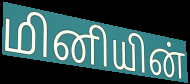
மினியின்